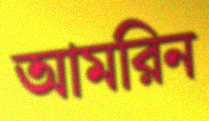
আমরিন